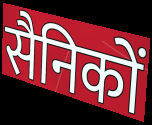
सैनिकों